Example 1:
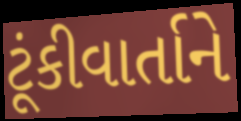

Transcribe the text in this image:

ટૂંકીવાર્તાને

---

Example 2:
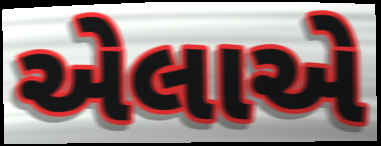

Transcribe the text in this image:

એલાએ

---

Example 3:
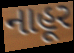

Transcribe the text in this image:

નાહૂર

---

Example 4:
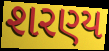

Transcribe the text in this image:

શરણ્ય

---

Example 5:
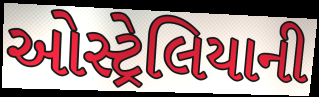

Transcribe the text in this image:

ઓસ્ટ્રેલિયાની